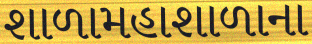
શાળામહાશાળાના